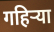
गहिऱ्या